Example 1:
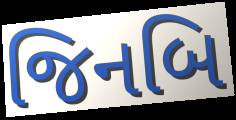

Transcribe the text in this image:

જિનબિ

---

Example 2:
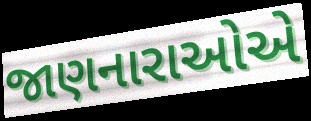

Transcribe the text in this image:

જાણનારાઓએ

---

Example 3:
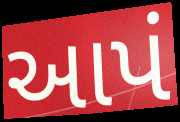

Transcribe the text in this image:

આપં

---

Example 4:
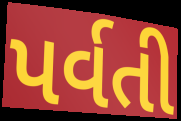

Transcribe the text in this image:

પર્વતી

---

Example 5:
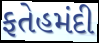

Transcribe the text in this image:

ફતેહમંદી